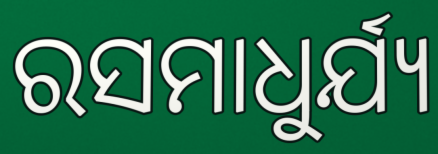
ରସମାଧୁର୍ଯ୍ୟ